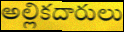
అల్లికదారులు